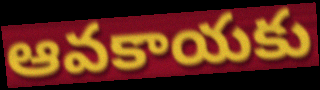
ఆవకాయకు